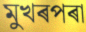
মুখৰপৰা